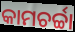
କାମଚର୍ଚ୍ଚା